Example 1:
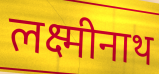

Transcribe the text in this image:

लक्ष्मीनाथ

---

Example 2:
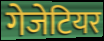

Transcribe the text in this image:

गेजेटियर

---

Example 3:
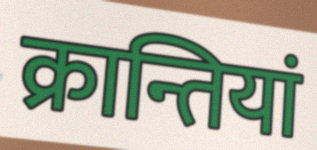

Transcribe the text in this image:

क्रान्तियां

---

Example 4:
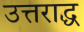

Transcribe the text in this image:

उत्तराद्ध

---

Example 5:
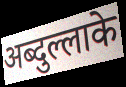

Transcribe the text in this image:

अब्दुल्लाके